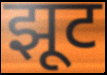
झूट